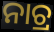
ନାଚ୍ର